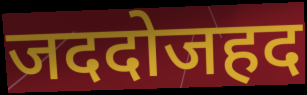
जददोजहद